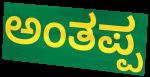
ಅಂತಪ್ಪ